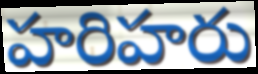
హరిహరు